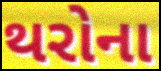
થરોના